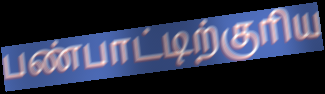
பண்பாட்டிற்குரிய